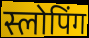
स्लोपिंग